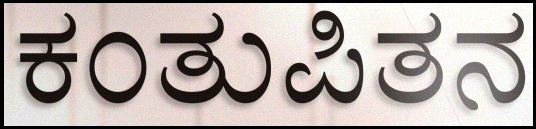
ಕಂತುಪಿತನ